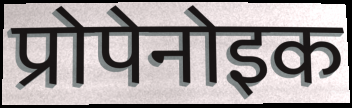
प्रोपेनोइक